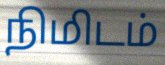
நிமிடம்